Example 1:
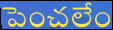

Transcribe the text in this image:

పెంచలేం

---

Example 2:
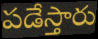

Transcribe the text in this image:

పడేస్తారు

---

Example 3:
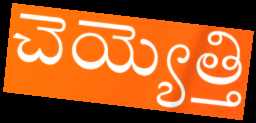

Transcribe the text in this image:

చెయ్యెత్తి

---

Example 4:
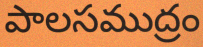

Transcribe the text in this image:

పాలసముద్రం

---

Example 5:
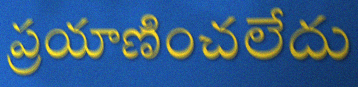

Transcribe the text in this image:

ప్రయాణించలేదు